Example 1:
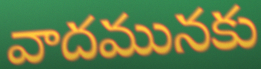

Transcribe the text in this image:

వాదమునకు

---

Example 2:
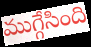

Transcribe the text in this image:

ముగ్గేసింది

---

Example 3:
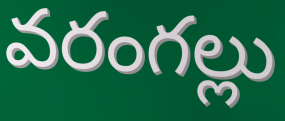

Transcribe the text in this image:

వరంగల్లు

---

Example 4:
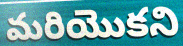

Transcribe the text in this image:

మరియొకని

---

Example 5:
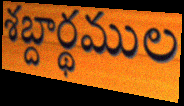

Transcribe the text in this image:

శబ్దార్థముల